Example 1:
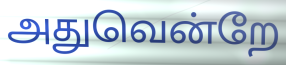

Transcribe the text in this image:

அதுவென்றே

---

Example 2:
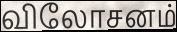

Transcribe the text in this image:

விலோசனம்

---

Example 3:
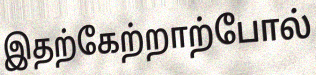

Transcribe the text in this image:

இதற்கேற்றாற்போல்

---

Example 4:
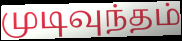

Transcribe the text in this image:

முடிவுந்தம்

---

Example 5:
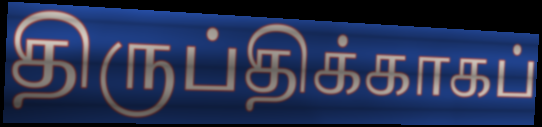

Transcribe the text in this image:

திருப்திக்காகப்